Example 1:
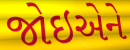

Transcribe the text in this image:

જોઇએને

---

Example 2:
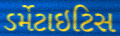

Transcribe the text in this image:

ડર્મેટાઇટિસ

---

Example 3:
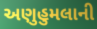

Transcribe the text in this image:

અણુહુમલાની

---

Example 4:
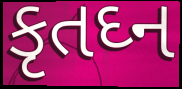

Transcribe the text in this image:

કૃતઘ્ન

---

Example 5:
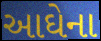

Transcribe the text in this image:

આઘેના